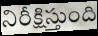
నిరీక్షిస్తుంది